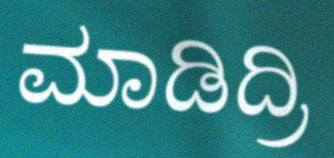
ಮಾಡಿದ್ರಿ